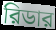
রিডার